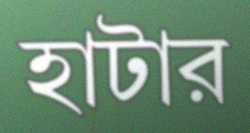
হাটার